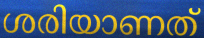
ശരിയാണത്